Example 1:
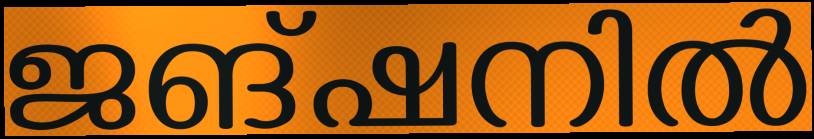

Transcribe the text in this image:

ജങ്ഷനിൽ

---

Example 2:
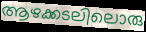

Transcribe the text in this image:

ആഴക്കടലിലൊരു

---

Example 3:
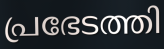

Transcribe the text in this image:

പ്രഭേടത്തി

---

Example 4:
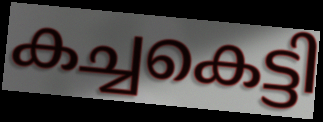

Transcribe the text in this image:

കച്ചകെട്ടി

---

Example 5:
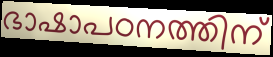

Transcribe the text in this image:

ഭാഷാപഠനത്തിന്